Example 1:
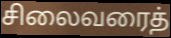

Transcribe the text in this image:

சிலைவரைத்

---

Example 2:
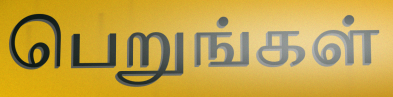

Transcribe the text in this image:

பெறுங்கள்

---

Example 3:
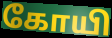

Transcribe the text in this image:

கோயி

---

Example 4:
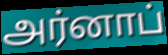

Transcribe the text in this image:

அர்னாப்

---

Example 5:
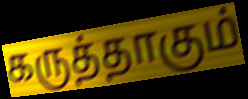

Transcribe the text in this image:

கருத்தாகும்